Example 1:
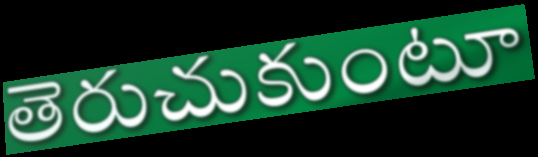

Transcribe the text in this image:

తెరుచుకుంటూ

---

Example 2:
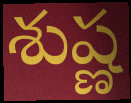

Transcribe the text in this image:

శుష్ణ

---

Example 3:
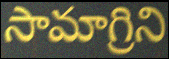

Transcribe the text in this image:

సామాగ్రిని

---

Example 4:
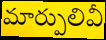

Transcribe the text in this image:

మార్పులివీ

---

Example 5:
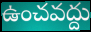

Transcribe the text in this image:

ఉంచవద్దు